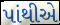
પાંથીએ